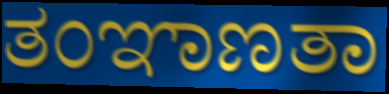
ತಂಞಾಣತಾ